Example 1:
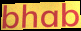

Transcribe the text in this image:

bhab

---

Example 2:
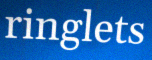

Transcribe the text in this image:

ringlets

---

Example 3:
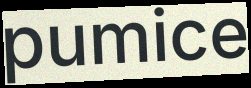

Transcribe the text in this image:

pumice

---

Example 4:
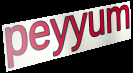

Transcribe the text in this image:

peyyum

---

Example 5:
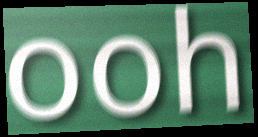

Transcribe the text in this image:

ooh